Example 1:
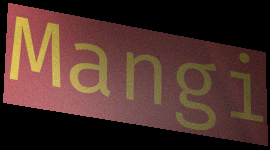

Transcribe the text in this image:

Mangi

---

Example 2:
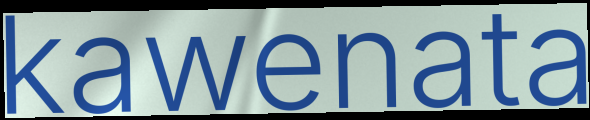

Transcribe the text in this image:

kawenata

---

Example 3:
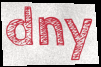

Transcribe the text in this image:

dny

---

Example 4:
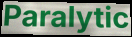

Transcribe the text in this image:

Paralytic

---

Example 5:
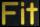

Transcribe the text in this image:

Fit